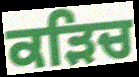
ਕੜਿਚ